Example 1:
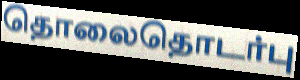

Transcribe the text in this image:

தொலைதொடர்பு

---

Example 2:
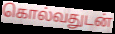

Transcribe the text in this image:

கொல்வதுடன்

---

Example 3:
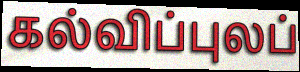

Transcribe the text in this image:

கல்விப்புலப்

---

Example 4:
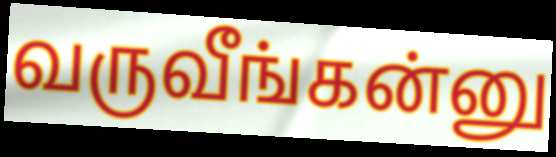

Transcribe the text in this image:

வருவீங்கன்னு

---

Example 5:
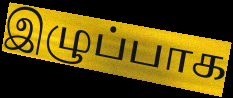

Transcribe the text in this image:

இழுப்பாக